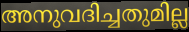
അനുവദിച്ചതുമില്ല